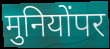
मुनियोंपर